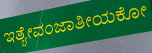
ಇತ್ಯೇವಂಜಾತೀಯಕೋ